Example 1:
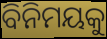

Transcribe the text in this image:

ବିନିମୟକୁ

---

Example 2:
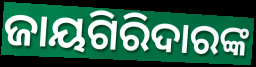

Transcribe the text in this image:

ଜାୟଗିରିଦାରଙ୍କ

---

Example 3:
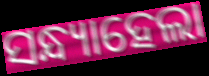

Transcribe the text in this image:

ସନ୍ଧ୍ୟାହେଲା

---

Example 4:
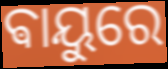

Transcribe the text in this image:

ଵାୟୁରେ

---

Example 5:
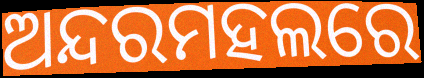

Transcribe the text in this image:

ଅନ୍ଦରମହଲରେ